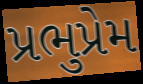
પ્રભુપ્રેમ